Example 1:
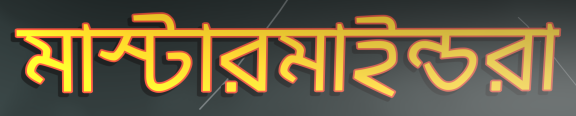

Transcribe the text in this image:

মাস্টারমাইন্ডরা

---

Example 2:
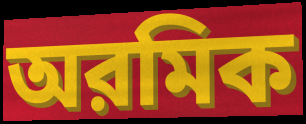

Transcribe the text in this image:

অরমিক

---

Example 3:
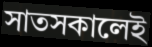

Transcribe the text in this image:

সাতসকালেই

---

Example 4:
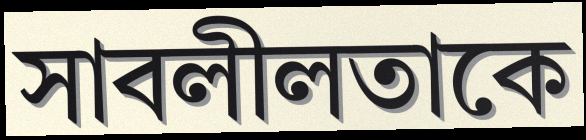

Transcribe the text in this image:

সাবলীলতাকে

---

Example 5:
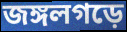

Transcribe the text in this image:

জঙ্গলগড়ে